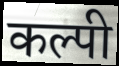
कल्पी